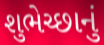
શુભેચ્છાનું